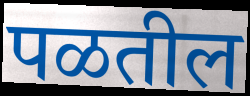
पळतील